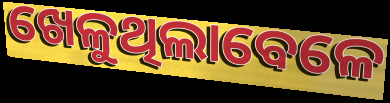
ଖେଳୁଥିଲାବେଳେ